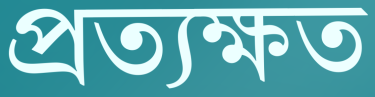
প্রত্যক্ষত